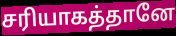
சரியாகத்தானே